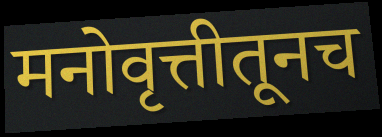
मनोवृत्तीतूनच